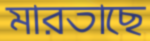
মারতাছে